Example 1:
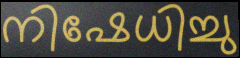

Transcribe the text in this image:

നിഷേധിച്ചു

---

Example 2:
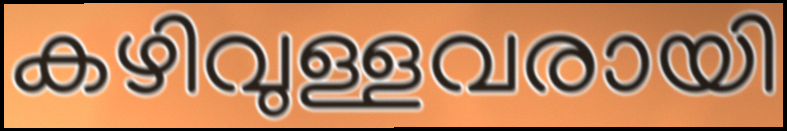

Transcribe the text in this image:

കഴിവുള്ളവരായി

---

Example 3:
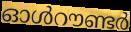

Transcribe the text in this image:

ഓൾറൗണ്ടർ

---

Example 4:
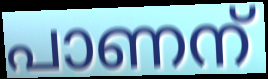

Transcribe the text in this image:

പാണന്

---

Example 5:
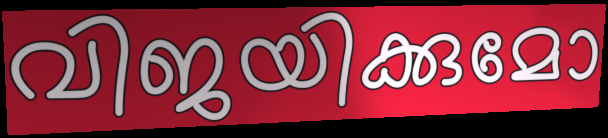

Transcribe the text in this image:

വിജയിക്കുമോ